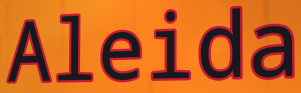
Aleida